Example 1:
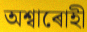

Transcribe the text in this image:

অশ্বাৰোহী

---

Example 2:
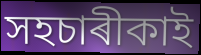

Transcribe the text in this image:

সহচাৰীকাই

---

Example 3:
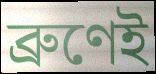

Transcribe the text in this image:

ব্ৰুণেই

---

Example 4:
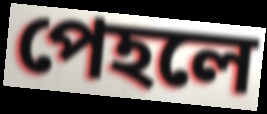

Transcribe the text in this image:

পেহলে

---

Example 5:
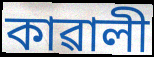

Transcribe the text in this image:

কাৱালী